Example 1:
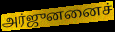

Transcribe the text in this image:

அர்ஜுனனைச்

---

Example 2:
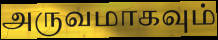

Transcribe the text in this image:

அருவமாகவும்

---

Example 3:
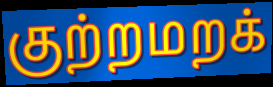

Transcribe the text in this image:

குற்றமறக்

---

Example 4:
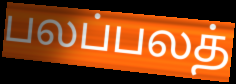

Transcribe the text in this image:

பலப்பலத்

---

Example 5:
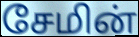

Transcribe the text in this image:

சேமின்